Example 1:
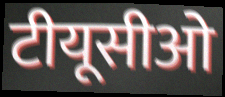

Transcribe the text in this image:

टीयूसीओ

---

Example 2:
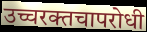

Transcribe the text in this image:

उच्चरक्तचापरोधी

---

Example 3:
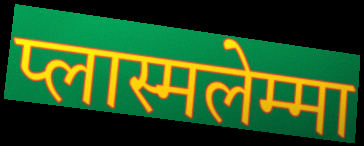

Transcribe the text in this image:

प्लास्मलेम्मा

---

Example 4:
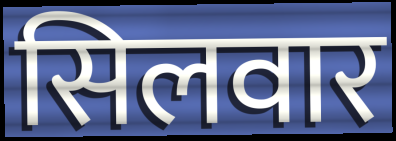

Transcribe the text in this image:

सिलवार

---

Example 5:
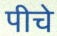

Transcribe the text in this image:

पीचे